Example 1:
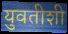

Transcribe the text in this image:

युवतीशी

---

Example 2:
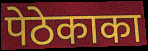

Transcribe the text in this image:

पेठेकाका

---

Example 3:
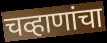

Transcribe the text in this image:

चव्हाणांचा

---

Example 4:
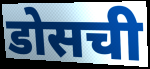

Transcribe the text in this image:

डोसची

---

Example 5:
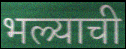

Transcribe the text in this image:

भल्याची